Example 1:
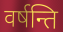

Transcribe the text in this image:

वर्षन्ति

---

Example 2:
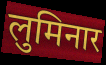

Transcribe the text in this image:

लुमिनार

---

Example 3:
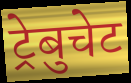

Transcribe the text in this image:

ट्रेबुचेट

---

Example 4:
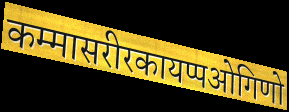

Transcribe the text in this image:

कम्मासरीरकायप्पओगिणो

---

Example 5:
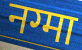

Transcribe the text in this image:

नग्मा